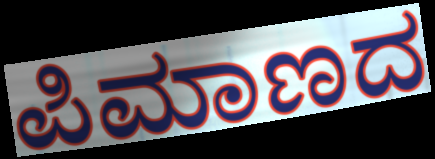
ಪಿಮಾಣದ